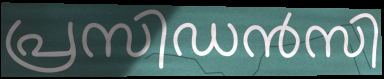
പ്രസിഡൻസി